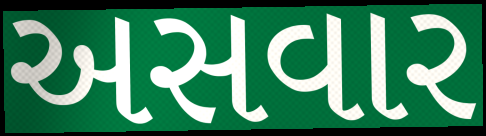
અસવાર